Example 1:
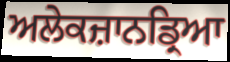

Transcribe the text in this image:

ਅਲੇਕਜ਼ਾਨਡ੍ਰਿਆ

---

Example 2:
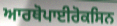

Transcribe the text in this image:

ਆਰਥੋਪਾਈਰੋਕਸਿਨ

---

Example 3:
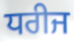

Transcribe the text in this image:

ਧਰੀਜ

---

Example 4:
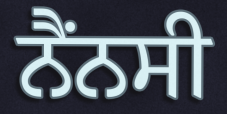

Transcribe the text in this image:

ਨੈਂਨਸੀ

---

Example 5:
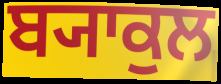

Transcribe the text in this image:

ਬ੍ਯਾਕੁਲ